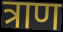
त्राण